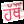
ਹੱਥੌਂ